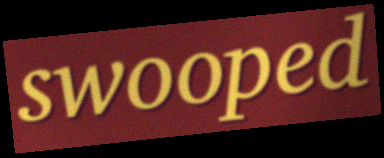
swooped